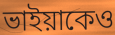
ভাইয়াকেও